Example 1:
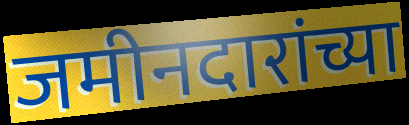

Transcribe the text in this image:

जमीनदारांच्या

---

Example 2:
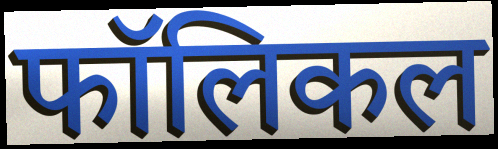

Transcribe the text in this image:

फॉलिकल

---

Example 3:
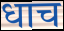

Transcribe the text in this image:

धाच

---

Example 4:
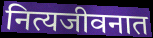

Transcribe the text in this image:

नित्यजीवनात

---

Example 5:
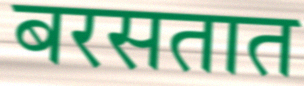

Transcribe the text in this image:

बरसतात